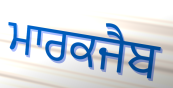
ਮਾਰਕਜੈਬ